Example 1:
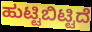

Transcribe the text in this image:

ಹುಟ್ಟಿಬಿಟ್ಟಿದೆ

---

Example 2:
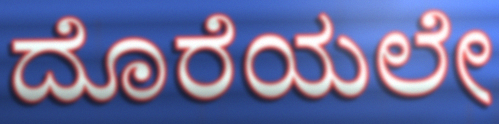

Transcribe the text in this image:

ದೊರೆಯಲೇ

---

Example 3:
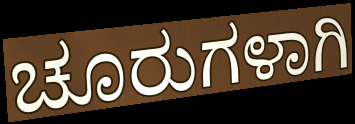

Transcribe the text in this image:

ಚೂರುಗಳಾಗಿ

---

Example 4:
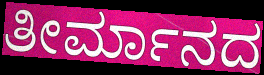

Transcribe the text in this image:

ತೀರ್ಮಾನದ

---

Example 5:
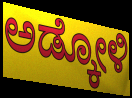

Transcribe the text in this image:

ಅಡ್ಕೋಳಿ